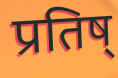
प्रतिष्